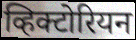
व्हिक्टोरियन